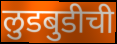
लुडबुडीची